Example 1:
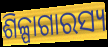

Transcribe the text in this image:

ଶିଳ୍ପାଗାରସ୍ୟ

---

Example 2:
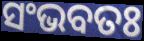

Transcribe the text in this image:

ସଂଭବତଃ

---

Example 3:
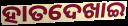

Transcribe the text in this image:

ହାତଦେଖାଇ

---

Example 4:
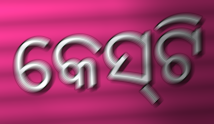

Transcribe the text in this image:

କେସ୍‌ଟି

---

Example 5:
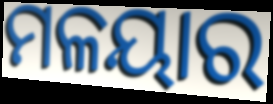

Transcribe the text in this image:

ମଳୟାର